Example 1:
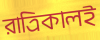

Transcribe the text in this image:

রাত্রিকালই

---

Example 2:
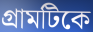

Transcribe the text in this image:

গ্রামটিকে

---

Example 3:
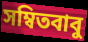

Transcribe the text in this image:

সম্বিতবাবু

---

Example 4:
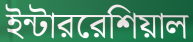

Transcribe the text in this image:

ইন্টাররেশিয়াল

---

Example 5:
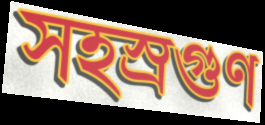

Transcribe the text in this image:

সহস্রগুণ